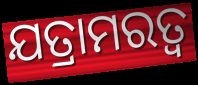
ଯତ୍ରାମରତ୍ଵ